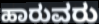
ಹಾರುವರು